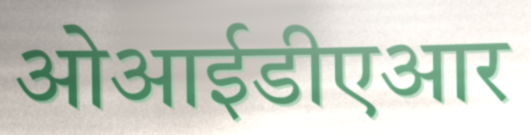
ओआईडीएआर